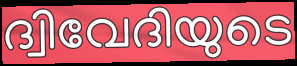
ദ്വിവേദിയുടെ